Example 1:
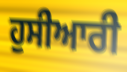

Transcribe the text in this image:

ਹੁਸੀਆਰੀ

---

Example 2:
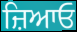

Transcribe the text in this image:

ਜ਼ਿਆਓ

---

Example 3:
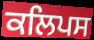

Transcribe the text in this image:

ਕਲਿਪਸ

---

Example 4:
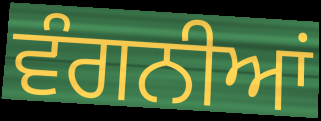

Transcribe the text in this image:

ਵੰਗਨੀਆਂ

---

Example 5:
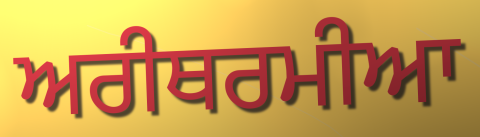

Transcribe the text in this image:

ਅਰੀਥਰਮੀਆ